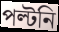
পল্টনি